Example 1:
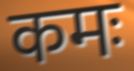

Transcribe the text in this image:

कमः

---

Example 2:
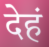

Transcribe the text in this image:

देहं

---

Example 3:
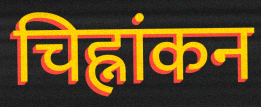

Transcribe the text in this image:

चिह्नांकन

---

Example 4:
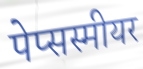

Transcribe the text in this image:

पेप्सस्मीयर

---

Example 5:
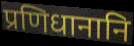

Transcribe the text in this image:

प्रणिधानानि